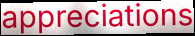
appreciations